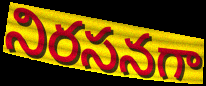
నిరసనగా